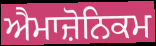
ਐਮਾਜ਼ੋਨਿਕਮ